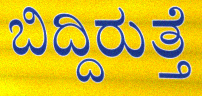
ಬಿದ್ದಿರುತ್ತೆ